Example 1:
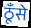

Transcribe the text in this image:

ठूँसे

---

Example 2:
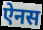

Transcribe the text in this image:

ऐनस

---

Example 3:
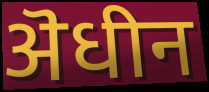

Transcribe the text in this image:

ऄधीन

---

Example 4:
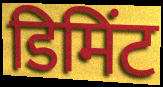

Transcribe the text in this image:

डिमिंट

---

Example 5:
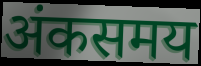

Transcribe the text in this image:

अंकसमय